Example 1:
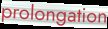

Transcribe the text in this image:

prolongation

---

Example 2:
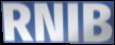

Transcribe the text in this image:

RNIB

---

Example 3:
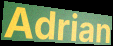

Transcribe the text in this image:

Adrian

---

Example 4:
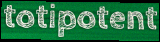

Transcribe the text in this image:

totipotent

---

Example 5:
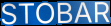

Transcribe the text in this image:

STOBAR